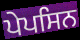
ਪੇਪਸਿਨ